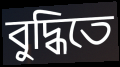
বুদ্ধিতে